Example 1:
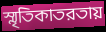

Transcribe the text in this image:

স্মৃতিকাতরতায়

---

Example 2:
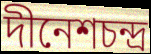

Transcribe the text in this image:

দীনেশচন্দ্র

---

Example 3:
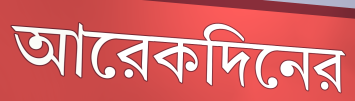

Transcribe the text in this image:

আরেকদিনের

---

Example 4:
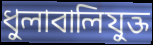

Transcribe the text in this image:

ধুলাবালিযুক্ত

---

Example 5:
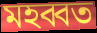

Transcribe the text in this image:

মহব্বত